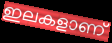
ഇലകളാണ്